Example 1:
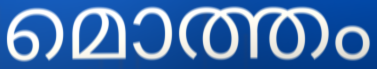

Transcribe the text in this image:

മൊത്തം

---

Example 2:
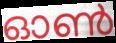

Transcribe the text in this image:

ഓൺ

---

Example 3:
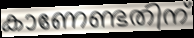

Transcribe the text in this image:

കാണേണ്ടതിന്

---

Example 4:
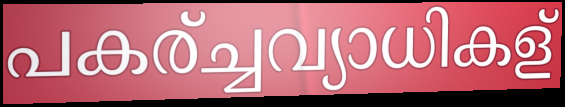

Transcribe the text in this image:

പകര്ച്ചവ്യാധികള്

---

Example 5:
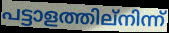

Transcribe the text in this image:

പട്ടാളത്തില്നിന്ന്